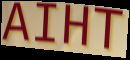
AIHT